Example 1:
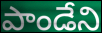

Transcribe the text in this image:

పాండేని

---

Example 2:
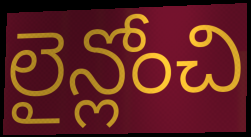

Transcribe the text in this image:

లైన్లోంచి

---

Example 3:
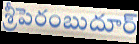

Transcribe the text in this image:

శ్రీపెరంబుదూర్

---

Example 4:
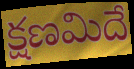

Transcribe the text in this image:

క్షణమిదే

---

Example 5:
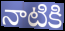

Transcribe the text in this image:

నాటికి